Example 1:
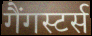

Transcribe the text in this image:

गैंगस्टर्स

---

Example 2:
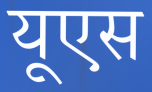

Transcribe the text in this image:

यूएस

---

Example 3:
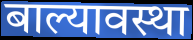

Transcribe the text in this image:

बाल्यावस्था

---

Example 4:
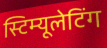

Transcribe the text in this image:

स्टिम्यूलेटिंग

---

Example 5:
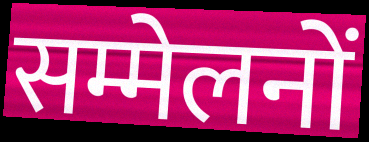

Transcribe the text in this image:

सम्मेलनों